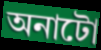
অনাটো